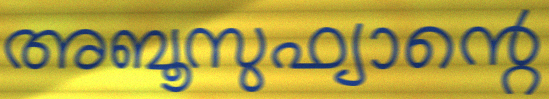
അബൂസുഫ്യാന്റെ